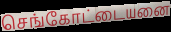
செங்கோட்டையனை